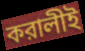
করালীই